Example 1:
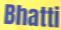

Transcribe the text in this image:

Bhatti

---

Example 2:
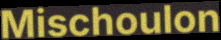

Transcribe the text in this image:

Mischoulon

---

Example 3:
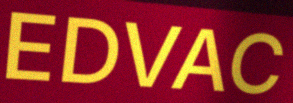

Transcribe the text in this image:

EDVAC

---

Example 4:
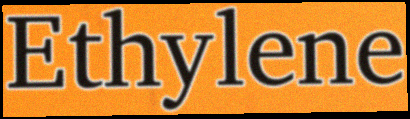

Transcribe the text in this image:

Ethylene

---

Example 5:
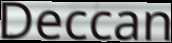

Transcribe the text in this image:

Deccan